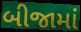
બીજામાં